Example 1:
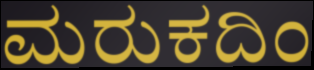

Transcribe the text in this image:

ಮರುಕದಿಂ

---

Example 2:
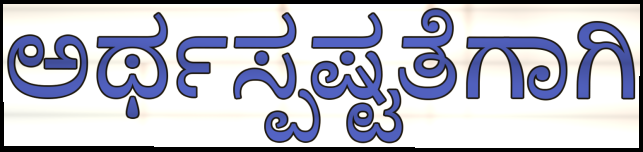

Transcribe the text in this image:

ಅರ್ಥಸ್ಪಷ್ಟತೆಗಾಗಿ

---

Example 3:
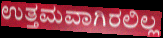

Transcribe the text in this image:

ಉತ್ತಮವಾಗಿರಲಿಲ್ಲ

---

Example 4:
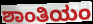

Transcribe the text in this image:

ಶಾಂತಿಯಂ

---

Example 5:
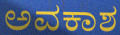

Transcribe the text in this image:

ಅವಕಾಶ